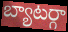
బ్యాటర్గా